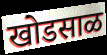
खोडसाळ